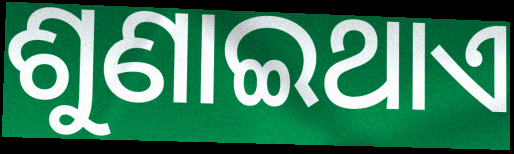
ଶୁଣାଇଥାଏ